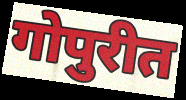
गोपुरीत